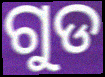
ଗୁଡ